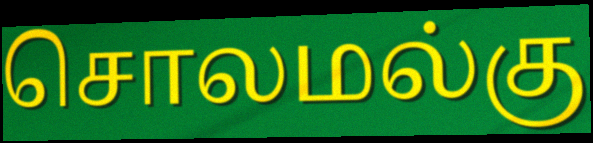
சொலமல்கு